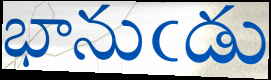
భానుఁడు